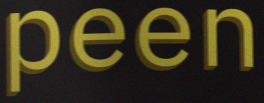
peen